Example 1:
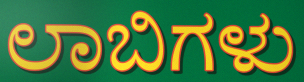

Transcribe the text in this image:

ಲಾಬಿಗಳು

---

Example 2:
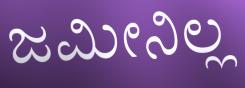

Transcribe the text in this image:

ಜಮೀನಿಲ್ಲ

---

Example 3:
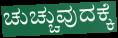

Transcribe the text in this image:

ಚುಚ್ಚುವುದಕ್ಕೆ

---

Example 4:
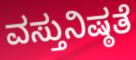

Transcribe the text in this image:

ವಸ್ತುನಿಷ್ಠತೆ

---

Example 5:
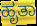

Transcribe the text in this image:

ಹೃತಾ